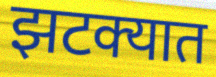
झटक्‍यात